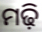
ମଢ଼ି